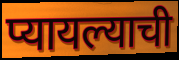
प्यायल्याची